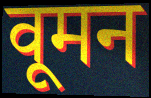
वूमन